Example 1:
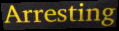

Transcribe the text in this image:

Arresting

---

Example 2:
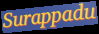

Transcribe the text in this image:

Surappadu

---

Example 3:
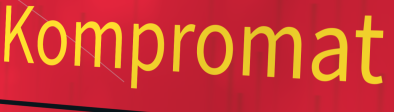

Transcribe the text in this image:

Kompromat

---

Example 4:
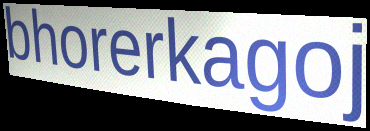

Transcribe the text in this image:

bhorerkagoj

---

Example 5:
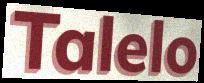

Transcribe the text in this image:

Talelo